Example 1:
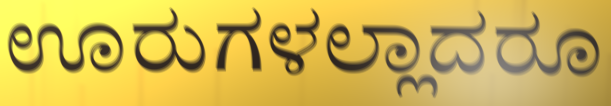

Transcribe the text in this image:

ಊರುಗಳಲ್ಲಾದರೂ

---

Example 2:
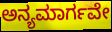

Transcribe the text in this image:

ಅನ್ಯಮಾರ್ಗವೇ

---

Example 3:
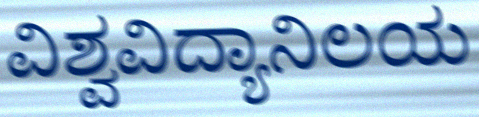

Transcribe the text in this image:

ವಿಶ್ವವಿದ್ಯಾನಿಲಯ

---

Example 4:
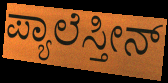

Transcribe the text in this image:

ಪ್ಯಾಲೆಸ್ತೀನ್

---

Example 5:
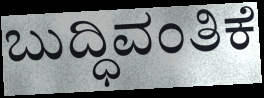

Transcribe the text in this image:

ಬುದ್ಧಿವಂತಿಕೆ